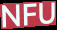
NFU